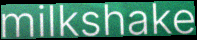
milkshake